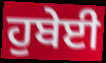
ਹੁਬੇਈ